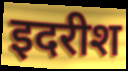
इदरीश